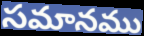
సమానము